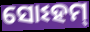
ସୋଽହମ୍